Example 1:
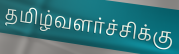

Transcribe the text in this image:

தமிழ்வளர்ச்சிக்கு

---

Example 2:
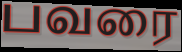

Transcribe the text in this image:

பவரை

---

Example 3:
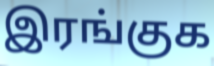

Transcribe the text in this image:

இரங்குக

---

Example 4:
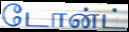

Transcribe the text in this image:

டோன்ட்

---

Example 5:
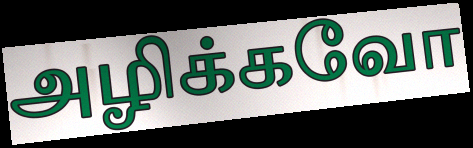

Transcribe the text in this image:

அழிக்கவோ